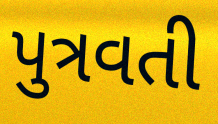
પુત્રવતી